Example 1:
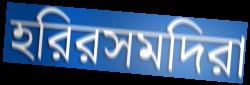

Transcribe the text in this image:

হরিরসমদিরা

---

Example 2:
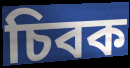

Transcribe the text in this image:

চিবক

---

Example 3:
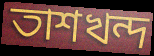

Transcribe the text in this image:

তাশখন্দ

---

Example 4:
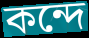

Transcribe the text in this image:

কন্দে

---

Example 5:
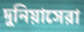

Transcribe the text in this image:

দুনিয়াসেরা